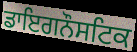
ਡਾਇਗਨੌਸਟਿਕ